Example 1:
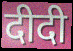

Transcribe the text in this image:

दीदी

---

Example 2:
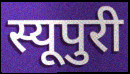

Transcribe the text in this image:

स्यूपुरी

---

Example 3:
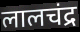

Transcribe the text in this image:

लालचंद्र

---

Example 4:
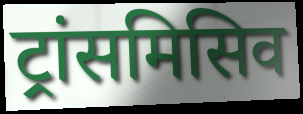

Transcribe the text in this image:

ट्रांसमिसिव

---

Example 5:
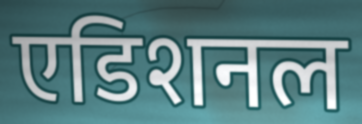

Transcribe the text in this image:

एडिशनल